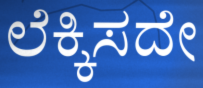
ಲೆಕ್ಕಿಸದೇ